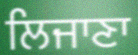
ਲਿਜਾਣਾ